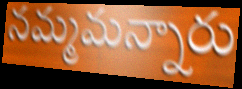
నమ్మమన్నారు